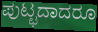
ಪುಟ್ಟದಾದರೂ